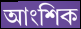
আংশিক